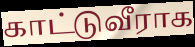
காட்டுவீராக